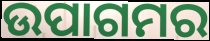
ଉପାଗମର